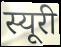
स्यूरी